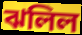
ঝলিল